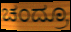
ಚಂದ್ರೂ